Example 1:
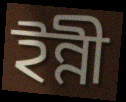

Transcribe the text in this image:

ইন্নী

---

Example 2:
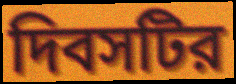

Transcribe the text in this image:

দিবসটির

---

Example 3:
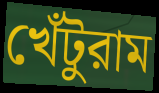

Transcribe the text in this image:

খেঁটুরাম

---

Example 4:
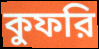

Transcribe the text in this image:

কুফরি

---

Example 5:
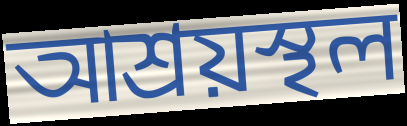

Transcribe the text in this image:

আশ্রয়স্থল